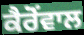
ਕੈਰੋਂਵਾਲ